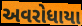
અવરોધાયા